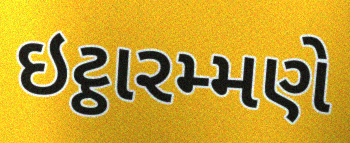
ઇટ્ઠારમ્મણે